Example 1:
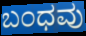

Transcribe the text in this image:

ಬಂಧವು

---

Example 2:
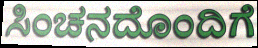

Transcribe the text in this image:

ಸಿಂಚನದೊಂದಿಗೆ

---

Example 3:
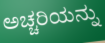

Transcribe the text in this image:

ಅಚ್ಚರಿಯನ್ನು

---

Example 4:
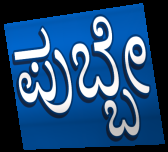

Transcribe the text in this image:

ಪುಬ್ಬೇ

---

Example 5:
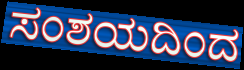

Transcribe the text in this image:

ಸಂಶಯದಿಂದ